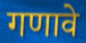
गणावे